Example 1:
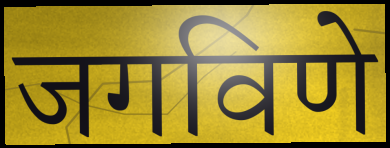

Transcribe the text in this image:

जगविणे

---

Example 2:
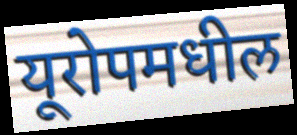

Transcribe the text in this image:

यूरोपमधील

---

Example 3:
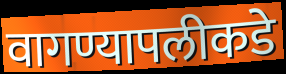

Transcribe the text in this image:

वागण्यापलीकडे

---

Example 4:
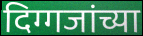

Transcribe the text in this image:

दिग्गजांच्या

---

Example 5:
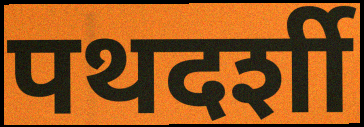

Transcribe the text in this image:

पथदर्शी